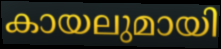
കായലുമായി